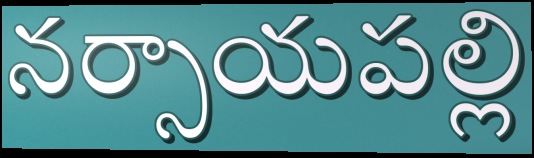
నర్సాయపల్లి